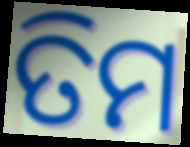
ତିମ